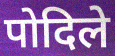
पोदिले